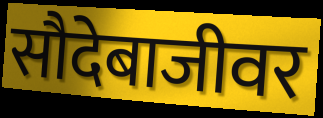
सौदेबाजीवर